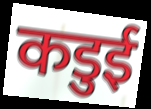
कडुई